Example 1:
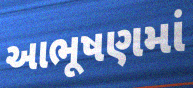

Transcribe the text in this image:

આભૂષણમાં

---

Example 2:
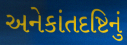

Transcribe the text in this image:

અનેકાંતદષ્ટિનું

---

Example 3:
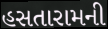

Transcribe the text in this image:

હસતારામની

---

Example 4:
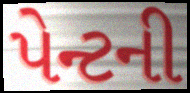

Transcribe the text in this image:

પેન્ટની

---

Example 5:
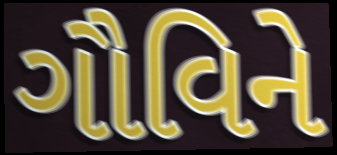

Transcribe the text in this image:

ગૌવિને